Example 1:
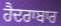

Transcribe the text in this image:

ਹੈਦਰਾਬਾਰ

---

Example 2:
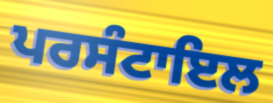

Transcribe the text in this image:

ਪਰਸੰਟਾਇਲ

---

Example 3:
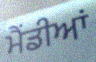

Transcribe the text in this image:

ਮੈਂਡੀਆਂ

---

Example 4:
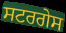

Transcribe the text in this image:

ਸਟਰਗੇਸ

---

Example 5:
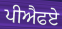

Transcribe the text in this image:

ਪੀਐਫਏ